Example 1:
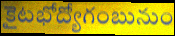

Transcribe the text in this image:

కైటభోద్యోగంబునుం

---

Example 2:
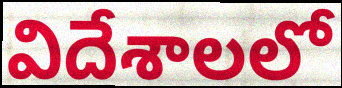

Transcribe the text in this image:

విదేశాలలో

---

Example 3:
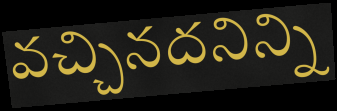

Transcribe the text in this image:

వచ్చినదనిన్ని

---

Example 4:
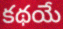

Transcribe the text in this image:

కథయే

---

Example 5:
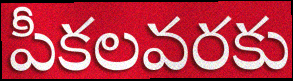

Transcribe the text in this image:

పీకలవరకు